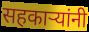
सहकाऱ्यांनी